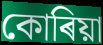
কোৰিয়া